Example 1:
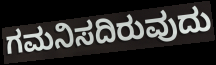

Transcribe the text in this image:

ಗಮನಿಸದಿರುವುದು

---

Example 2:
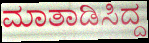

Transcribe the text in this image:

ಮಾತಾಡಿಸಿದ್ದ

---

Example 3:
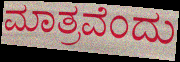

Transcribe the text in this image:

ಮಾತ್ರವೆಂದು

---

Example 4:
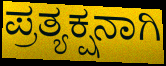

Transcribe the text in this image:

ಪ್ರತ್ಯಕ್ಷನಾಗಿ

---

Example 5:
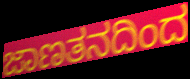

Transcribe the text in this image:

ಜಾಣತನದಿಂದ